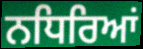
ਨਧਿਰਿਆਂ